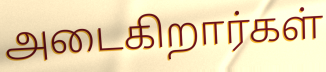
அடைகிறார்கள்